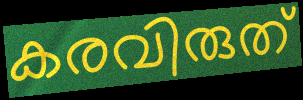
കരവിരുത്